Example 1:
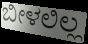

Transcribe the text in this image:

ಬೀಳಲಿಲ್ಲ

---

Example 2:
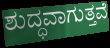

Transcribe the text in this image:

ಶುದ್ಧವಾಗುತ್ತವೆ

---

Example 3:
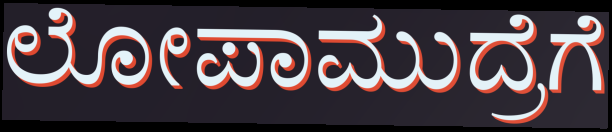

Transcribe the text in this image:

ಲೋಪಾಮುದ್ರೆಗೆ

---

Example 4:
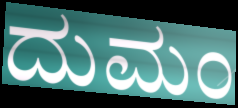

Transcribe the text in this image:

ದುಮಂ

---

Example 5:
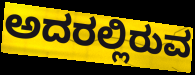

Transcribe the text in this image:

ಅದರಲ್ಲಿರುವ